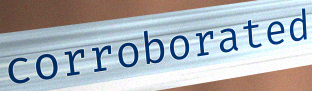
corroborated